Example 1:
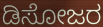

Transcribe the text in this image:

ಡಿಸೋಜರ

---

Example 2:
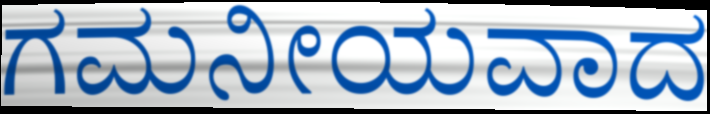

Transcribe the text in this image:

ಗಮನೀಯವಾದ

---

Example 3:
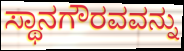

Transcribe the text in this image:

ಸ್ಥಾನಗೌರವವನ್ನು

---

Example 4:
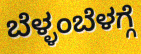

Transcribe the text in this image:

ಬೆಳ್ಳಂಬೆಳಗ್ಗೆ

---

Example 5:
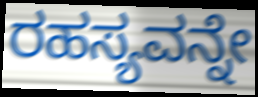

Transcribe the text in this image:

ರಹಸ್ಯವನ್ನೇ